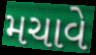
મચાવે